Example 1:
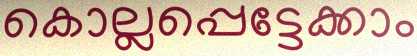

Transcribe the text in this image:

കൊല്ലപ്പെട്ടേക്കാം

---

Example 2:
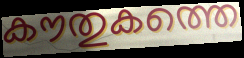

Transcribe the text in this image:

കൗതുകത്തെ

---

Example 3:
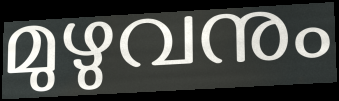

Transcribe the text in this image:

മുഴുവനും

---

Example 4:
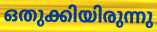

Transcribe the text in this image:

ഒതുക്കിയിരുന്നു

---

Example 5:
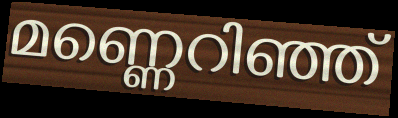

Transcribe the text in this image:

മണ്ണെറിഞ്ഞ്